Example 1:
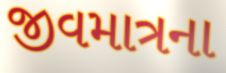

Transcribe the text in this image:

જીવમાત્રના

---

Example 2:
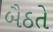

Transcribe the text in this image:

બૈઠતે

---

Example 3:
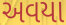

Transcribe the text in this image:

અવયા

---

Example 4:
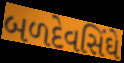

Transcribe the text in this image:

બળદેવસિંઘે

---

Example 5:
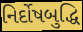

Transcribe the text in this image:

નિર્દોષબુદ્ધિ